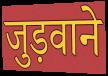
जुड़वाने